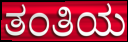
ತಂತಿಯ